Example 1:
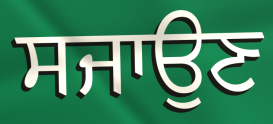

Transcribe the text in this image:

ਸਜਾਉਣ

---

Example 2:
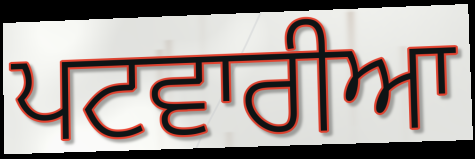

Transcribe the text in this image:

ਪਟਵਾਰੀਆ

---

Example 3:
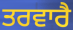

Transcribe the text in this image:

ਤਰਵਾਰੈ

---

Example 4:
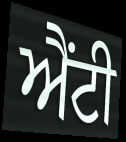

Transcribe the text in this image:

ਐਂਟੀ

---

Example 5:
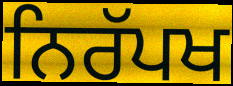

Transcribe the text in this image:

ਨਿਰੱਪਖ